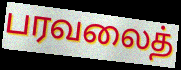
பரவலைத்